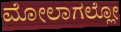
ಮೋಲಾಗಲ್ಲೋ